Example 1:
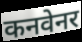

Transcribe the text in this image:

कनवेनर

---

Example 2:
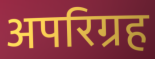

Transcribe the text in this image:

अपरिग्रह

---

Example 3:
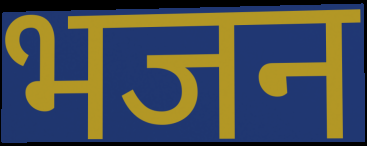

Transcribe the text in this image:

भजन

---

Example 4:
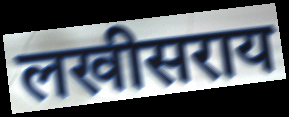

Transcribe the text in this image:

लखीसराय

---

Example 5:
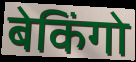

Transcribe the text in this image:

बेकिंगो